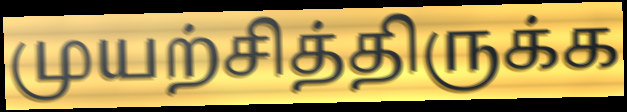
முயற்சித்திருக்க